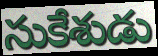
సుకేశుడు